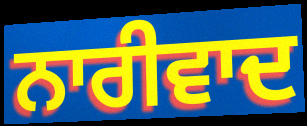
ਨਾਰੀਵਾਦ